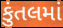
કુંતલમાં